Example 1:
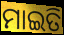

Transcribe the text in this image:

ମାଇତି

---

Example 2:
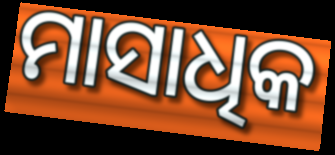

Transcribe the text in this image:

ମାସାଧିକ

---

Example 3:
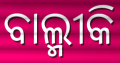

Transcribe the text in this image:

ବାଲ୍ମୀକି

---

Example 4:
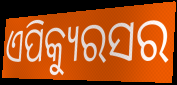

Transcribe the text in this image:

ଏପିକ୍ୟୁରସର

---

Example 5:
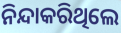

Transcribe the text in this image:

ନିନ୍ଦାକରିଥିଲେ